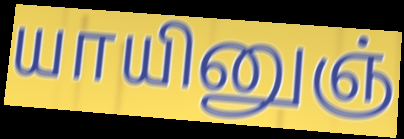
யாயினுஞ்